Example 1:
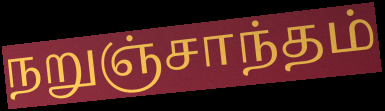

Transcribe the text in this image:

நறுஞ்சாந்தம்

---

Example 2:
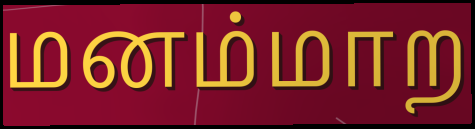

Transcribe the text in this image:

மனம்மாற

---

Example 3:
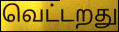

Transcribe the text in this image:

வெட்டறது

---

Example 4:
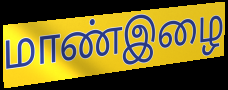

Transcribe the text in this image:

மாண்இழை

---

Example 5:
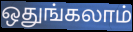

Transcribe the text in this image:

ஒதுங்கலாம்